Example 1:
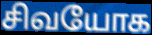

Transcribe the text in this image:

சிவயோக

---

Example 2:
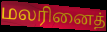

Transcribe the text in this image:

மலரினைத்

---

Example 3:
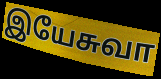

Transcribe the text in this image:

இயேசுவா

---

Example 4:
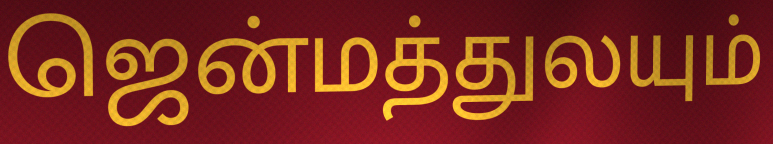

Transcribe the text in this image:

ஜென்மத்துலயும்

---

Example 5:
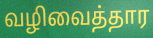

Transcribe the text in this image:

வழிவைத்தார